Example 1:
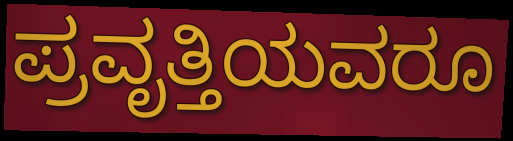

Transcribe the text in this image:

ಪ್ರವೃತ್ತಿಯವರೂ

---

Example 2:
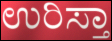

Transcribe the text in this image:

ಉರಿಸ್ತಾ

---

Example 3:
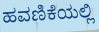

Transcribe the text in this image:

ಹವಣಿಕೆಯಲ್ಲಿ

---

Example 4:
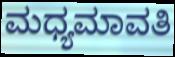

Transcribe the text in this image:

ಮಧ್ಯಮಾವತಿ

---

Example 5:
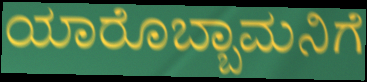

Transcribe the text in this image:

ಯಾರೊಬ್ಬಾಮನಿಗೆ